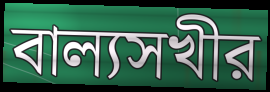
বাল্যসখীর